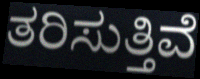
ತರಿಸುತ್ತಿವೆ